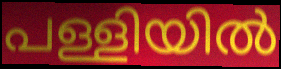
പള്ളിയിൽ